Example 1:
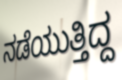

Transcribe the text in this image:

ನಡೆಯುತ್ತಿದ್ದ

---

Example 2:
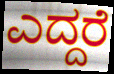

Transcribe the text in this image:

ಎದ್ದರೆ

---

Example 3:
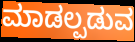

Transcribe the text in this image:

ಮಾಡಲ್ಪಡುವ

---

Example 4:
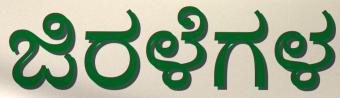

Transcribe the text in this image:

ಜಿರಳೆಗಳ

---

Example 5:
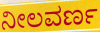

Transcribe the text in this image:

ನೀಲವರ್ಣ